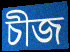
চীজ